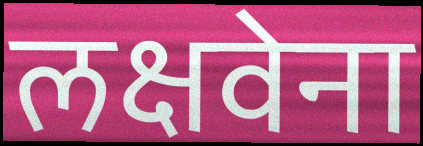
लक्षवेना